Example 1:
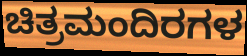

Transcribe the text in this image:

ಚಿತ್ರಮಂದಿರಗಳ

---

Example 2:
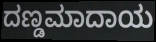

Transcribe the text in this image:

ದಣ್ಡಮಾದಾಯ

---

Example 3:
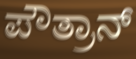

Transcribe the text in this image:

ಪೌತ್ರಾನ್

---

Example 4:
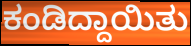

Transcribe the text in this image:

ಕಂಡಿದ್ದಾಯಿತು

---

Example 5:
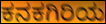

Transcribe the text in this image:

ಕನಕಗಿರಿಯ